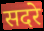
सदरे